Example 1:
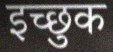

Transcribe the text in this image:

इच्‍छुक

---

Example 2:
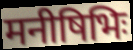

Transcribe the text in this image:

मनीषिभिः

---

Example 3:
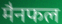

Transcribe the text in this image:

मैनफल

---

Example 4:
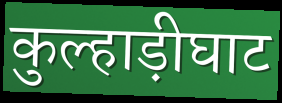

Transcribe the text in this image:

कुल्हाड़ीघाट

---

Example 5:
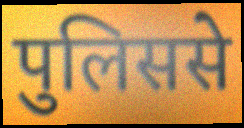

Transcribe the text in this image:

पुलिससे